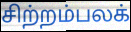
சிற்றம்பலக்